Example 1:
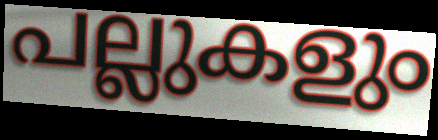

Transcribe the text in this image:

പല്ലുകളും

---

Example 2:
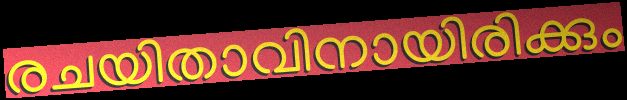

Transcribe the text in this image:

രചയിതാവിനായിരിക്കും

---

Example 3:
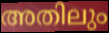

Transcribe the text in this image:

അതിലും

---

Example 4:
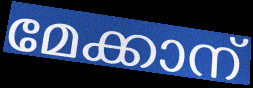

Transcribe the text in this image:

മേക്കാന്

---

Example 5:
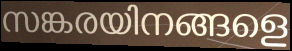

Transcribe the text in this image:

സങ്കരയിനങ്ങളെ